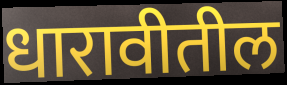
धारावीतील